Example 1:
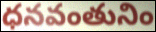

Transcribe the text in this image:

ధనవంతునిం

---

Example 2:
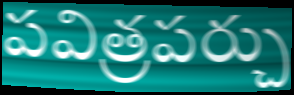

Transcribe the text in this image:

పవిత్రపర్చు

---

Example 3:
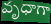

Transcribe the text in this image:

వృధాగా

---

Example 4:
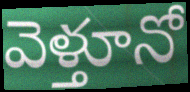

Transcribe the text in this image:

వెళ్తూనో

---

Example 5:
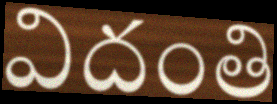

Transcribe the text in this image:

విదంతి